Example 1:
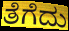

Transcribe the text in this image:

ತೆಗೆದು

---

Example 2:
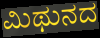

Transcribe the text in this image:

ಮಿಥುನದ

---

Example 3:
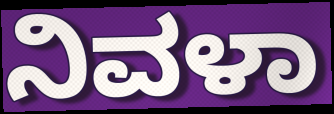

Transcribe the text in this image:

ನಿವಳಾ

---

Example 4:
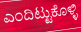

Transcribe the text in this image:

ಎಂದಿಟ್ಟುಕೊಳ್ಳಿ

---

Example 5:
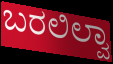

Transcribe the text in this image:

ಬರಲಿಲ್ವಾ